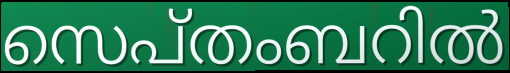
സെപ്തംബറിൽ